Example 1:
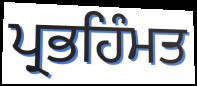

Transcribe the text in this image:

ਪ੍ਰਭਹਿੰਮਤ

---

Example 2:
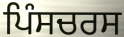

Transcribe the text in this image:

ਪਿੰਸਚਰਸ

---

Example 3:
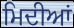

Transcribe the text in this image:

ਮਿਦੀਆਂ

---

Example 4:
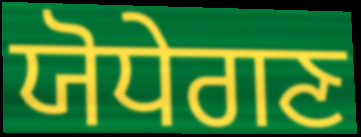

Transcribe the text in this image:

ਯੋਧੇਗਣ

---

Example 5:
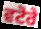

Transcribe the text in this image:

ਵਟੋਰੇ